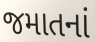
જમાતનાં